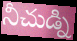
నీచుడ్ని